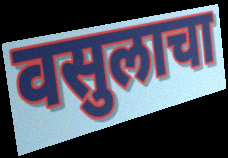
वसुलाचा